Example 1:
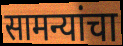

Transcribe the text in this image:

सामन्यांचा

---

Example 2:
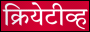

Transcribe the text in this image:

क्रियेटीव्ह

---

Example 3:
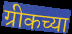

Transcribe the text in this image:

ग्रीकच्या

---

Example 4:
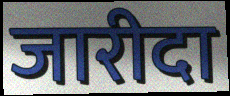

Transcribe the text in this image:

जारीदा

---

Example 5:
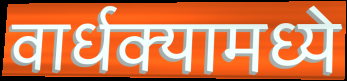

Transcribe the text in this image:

वार्धक्यामध्ये